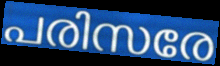
പരിസരേ